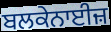
ਬਲਕੇਨਾਈਜ਼